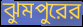
ঝুমপুরের